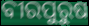
ବୀରପୁରୁଷ